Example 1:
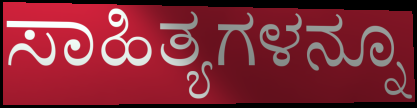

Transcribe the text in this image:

ಸಾಹಿತ್ಯಗಳನ್ನೂ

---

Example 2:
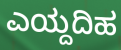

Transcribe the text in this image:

ಎಯ್ದದಿಹ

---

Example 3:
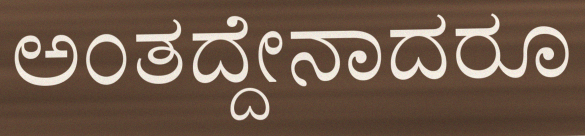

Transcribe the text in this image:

ಅಂತದ್ದೇನಾದರೂ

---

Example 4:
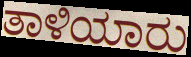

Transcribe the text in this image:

ತಾಳಿಯಾರು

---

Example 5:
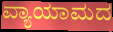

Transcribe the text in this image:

ವ್ಯಾಯಾಮದ